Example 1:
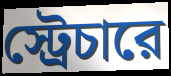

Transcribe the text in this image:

স্ট্রেচারে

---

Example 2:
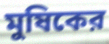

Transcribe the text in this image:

মুষিকের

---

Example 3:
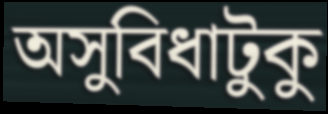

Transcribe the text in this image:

অসুবিধাটুকু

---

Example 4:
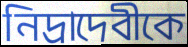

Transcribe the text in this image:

নিদ্রাদেবীকে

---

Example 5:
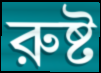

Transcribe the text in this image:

রুষ্ট